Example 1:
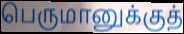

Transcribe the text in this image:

பெருமானுக்குத்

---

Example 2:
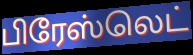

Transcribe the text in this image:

பிரேஸ்லெட்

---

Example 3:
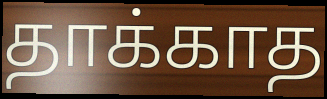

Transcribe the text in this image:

தாக்காத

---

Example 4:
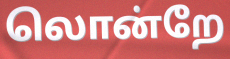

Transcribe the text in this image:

லொன்றே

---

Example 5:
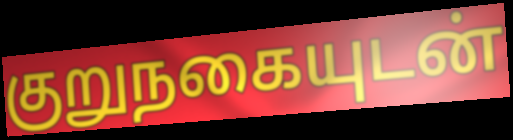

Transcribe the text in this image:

குறுநகையுடன்